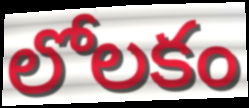
లోలకం